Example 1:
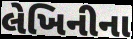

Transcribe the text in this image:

લેખિનીના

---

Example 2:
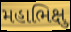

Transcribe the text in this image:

મહાભિક્ષુ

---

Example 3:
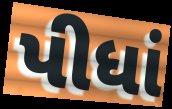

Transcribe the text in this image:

પીધાં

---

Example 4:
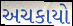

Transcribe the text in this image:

અચકાયો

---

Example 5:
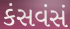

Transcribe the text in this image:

કંસવંસં